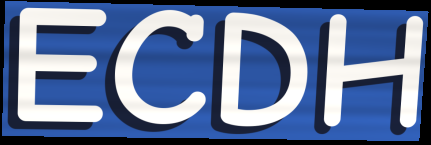
ECDH